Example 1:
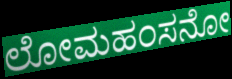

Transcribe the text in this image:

ಲೋಮಹಂಸನೋ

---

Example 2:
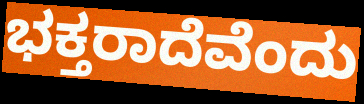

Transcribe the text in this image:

ಭಕ್ತರಾದೆವೆಂದು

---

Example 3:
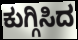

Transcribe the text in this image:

ಕುಗ್ಗಿಸಿದ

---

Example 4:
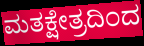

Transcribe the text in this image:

ಮತಕ್ಷೇತ್ರದಿಂದ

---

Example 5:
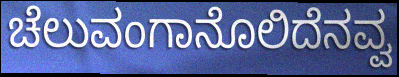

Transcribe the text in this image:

ಚೆಲುವಂಗಾನೊಲಿದೆನವ್ವ